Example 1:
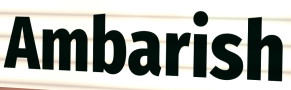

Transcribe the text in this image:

Ambarish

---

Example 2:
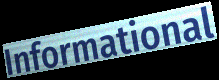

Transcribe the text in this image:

Informational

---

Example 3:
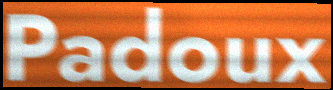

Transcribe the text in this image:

Padoux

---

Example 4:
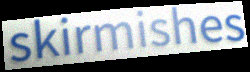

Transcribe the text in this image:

skirmishes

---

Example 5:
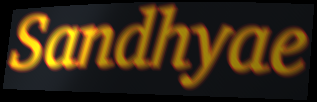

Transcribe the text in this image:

Sandhyae